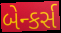
બેન્કર્સ